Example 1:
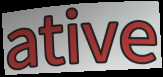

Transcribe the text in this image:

ative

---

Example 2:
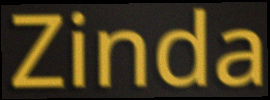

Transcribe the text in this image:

Zinda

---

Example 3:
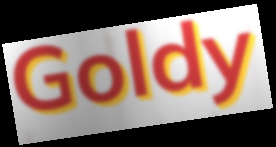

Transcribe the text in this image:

Goldy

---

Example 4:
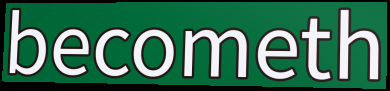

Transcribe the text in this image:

becometh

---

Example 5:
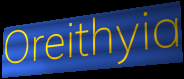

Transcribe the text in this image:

Oreithyia